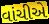
વાંચીએ